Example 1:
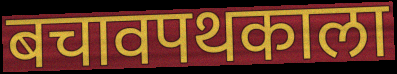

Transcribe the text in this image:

बचावपथकाला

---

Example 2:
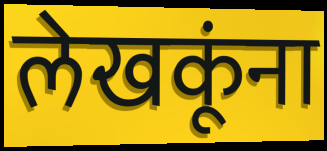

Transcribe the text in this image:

लेखकूंना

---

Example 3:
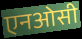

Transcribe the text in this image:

एनओसी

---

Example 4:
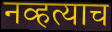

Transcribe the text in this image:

नव्हत्याच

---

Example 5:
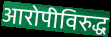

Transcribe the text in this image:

आरोपीविरुद्ध